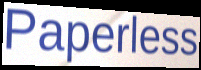
Paperless